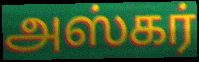
அஸ்கர்